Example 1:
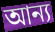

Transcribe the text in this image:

আন্য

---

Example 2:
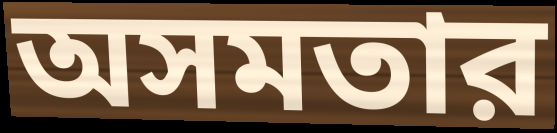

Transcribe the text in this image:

অসমতার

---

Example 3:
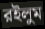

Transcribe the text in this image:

রইলুম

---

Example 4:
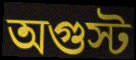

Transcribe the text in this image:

অগুস্ট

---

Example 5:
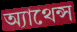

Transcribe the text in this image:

অ্যাথেন্স